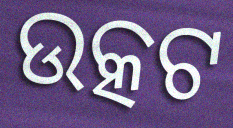
ଉତ୍କଟ